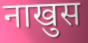
नाखुस